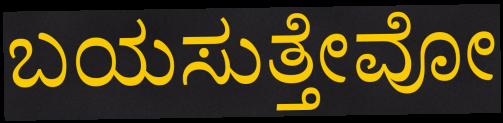
ಬಯಸುತ್ತೇವೋ